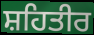
ਸ਼ਹਿਤੀਰ